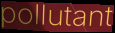
pollutant